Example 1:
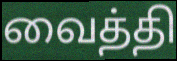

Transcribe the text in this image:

வைத்தி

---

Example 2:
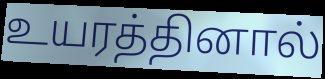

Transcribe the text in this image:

உயரத்தினால்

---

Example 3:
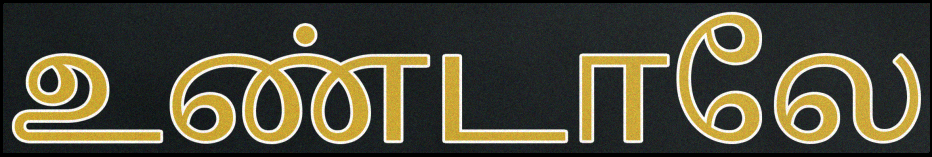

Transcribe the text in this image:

உண்டாலே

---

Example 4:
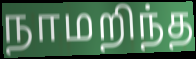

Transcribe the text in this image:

நாமறிந்த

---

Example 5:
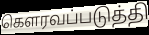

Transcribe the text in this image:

கெளரவப்படுத்தி